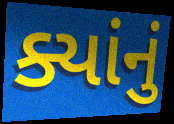
ક્યાંનું